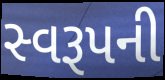
સ્વરૂપની